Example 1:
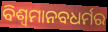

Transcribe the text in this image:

ବିଶ୍ବମାନବଧର୍ମର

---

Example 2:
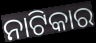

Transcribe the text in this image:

ନାଟିକାର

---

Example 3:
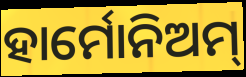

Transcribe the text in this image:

ହାର୍ମୋନିଅମ୍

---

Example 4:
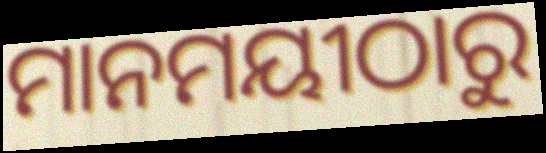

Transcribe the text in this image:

ମାନମୟୀଠାରୁ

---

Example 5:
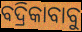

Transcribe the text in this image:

ବଦ୍ରିକାବାବୁ